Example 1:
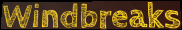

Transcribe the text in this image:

Windbreaks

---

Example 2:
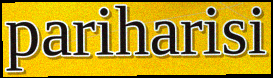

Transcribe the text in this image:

pariharisi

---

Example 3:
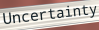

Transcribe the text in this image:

Uncertainty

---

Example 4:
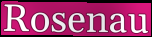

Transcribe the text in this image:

Rosenau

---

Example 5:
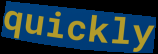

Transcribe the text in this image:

quickly